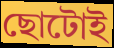
ছোটোই